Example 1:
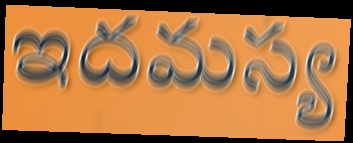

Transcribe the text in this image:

ఇదమస్య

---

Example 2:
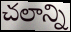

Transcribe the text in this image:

చలాన్ని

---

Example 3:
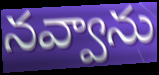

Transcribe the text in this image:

నవ్వాను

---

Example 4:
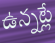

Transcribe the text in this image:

ఉన్నట్లే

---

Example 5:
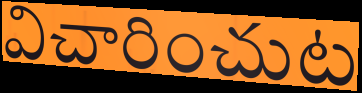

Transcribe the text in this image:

విచారించుట